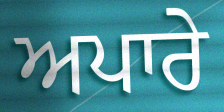
ਅਪਾਰੇ